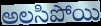
అలసిపోయి